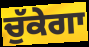
ਚੁੱਕੇਗਾ